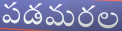
పడమరల